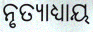
ନୃତ୍ୟାଧ୍ୟାୟ